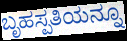
ಬೃಹಸ್ಪತಿಯನ್ನೂ